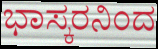
ಭಾಸ್ಕರನಿಂದ